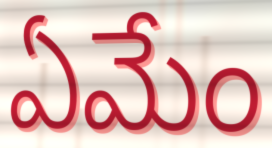
ఏమేం